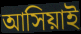
আসিয়াই